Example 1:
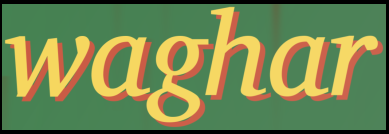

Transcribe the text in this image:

waghar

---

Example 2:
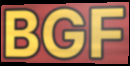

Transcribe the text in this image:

BGF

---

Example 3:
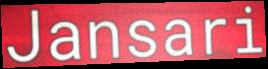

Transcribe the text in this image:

Jansari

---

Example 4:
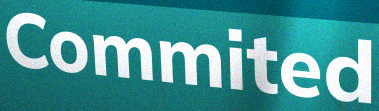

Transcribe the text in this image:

Commited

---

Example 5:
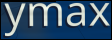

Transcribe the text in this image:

ymax